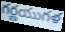
గర్ణయుగళ